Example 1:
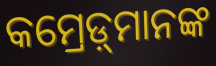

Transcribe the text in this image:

କମ୍ରେଡ଼୍‍ମାନଙ୍କ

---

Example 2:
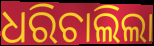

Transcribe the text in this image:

ଧରିଚାଲିଲା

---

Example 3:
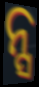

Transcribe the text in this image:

ନ୍ସ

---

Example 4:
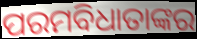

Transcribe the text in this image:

ପରମବିଧାତାଙ୍କର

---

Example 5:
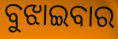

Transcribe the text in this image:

ବୁଝାଇବାର